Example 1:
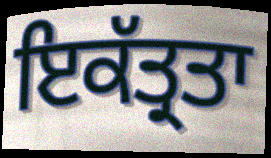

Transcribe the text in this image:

ਇਕੱਤ੍ਰਤਾ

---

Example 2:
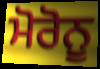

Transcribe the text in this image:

ਮੋਰੋਨੂ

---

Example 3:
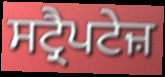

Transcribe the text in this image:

ਸਟ੍ਰੈਪਟੇਜ਼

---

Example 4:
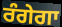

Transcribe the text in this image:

ਰੰਗੇਗਾ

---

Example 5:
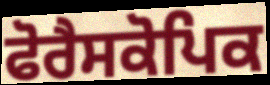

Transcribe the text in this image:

ਫੋਰੈਸਕੋਪਿਕ